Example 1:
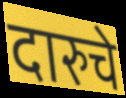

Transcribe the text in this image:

दारुचे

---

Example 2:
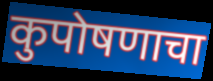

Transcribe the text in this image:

कुपोषणाचा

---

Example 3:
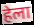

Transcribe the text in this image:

हेला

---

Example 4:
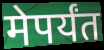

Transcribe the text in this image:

मेपर्यंत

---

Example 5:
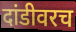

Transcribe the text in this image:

दांडीवरच